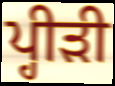
ਪ੍ਹੀੜੀ